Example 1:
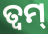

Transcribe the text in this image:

ତ୍ଵମ୍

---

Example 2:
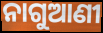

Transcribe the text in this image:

ନାଗୁଆଣୀ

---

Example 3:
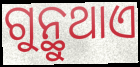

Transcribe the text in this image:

ଗୁନ୍ଥୁଥାଏ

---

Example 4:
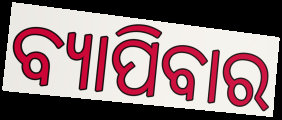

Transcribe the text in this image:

ବ୍ୟାପିବାର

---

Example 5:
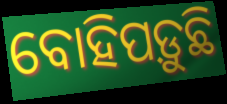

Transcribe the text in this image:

ବୋହିପଡ଼ୁଛି